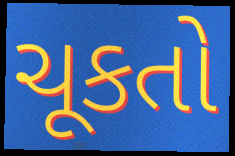
ચૂકતો